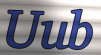
Uub